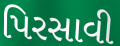
પિરસાવી